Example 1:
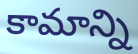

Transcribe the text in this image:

కామాన్ని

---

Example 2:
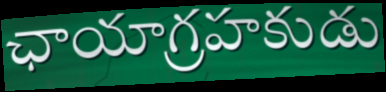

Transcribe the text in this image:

ఛాయాగ్రహకుడు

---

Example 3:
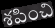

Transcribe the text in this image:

శపించి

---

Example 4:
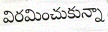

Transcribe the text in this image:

విరమించుకున్నా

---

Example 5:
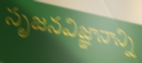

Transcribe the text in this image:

సృజనవిజ్ఞానాన్ని